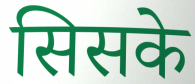
सिसके